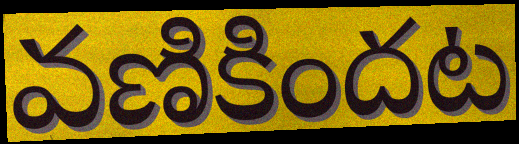
వణికిందట